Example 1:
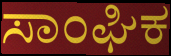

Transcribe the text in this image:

ಸಾಂಘಿಕ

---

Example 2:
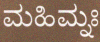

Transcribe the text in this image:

ಮಹಿಮ್ನಃ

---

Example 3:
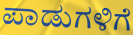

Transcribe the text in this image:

ಪಾಡುಗಳಿಗೆ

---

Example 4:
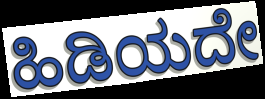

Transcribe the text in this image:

ಹಿಡಿಯದೇ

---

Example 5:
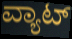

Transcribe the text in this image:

ವ್ಯಾಟ್